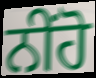
ਨੀਂਹੋ